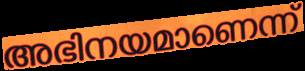
അഭിനയമാണെന്ന്